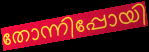
തോന്നിപ്പോയി